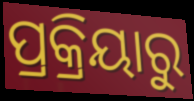
ପ୍ରକ୍ରିୟାରୁ